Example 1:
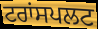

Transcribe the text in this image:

ਟਰਾਂਸਪਲਟ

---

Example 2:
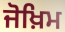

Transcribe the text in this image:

ਜੋਖ਼ਿਮ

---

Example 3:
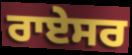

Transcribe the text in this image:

ਰਾਏਸਰ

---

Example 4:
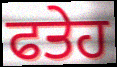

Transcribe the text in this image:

ਫਤੇਹ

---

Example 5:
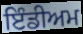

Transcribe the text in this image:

ਇੰਡੀਅਮ